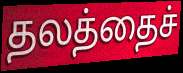
தலத்தைச்